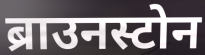
ब्राउनस्टोन